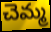
చెమ్మ